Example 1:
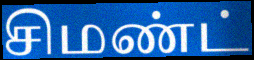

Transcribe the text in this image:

சிமண்ட்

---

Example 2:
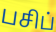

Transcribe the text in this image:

பசிப்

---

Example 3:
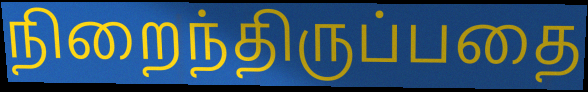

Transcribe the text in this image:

நிறைந்திருப்பதை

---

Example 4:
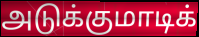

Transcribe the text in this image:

அடுக்குமாடிக்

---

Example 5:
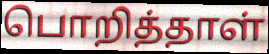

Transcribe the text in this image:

பொறித்தாள்